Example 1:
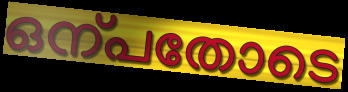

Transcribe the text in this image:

ഒന്പതോടെ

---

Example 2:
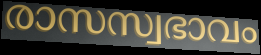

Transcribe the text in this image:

രാസസ്വഭാവം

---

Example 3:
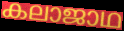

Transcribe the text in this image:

കലാജാഥ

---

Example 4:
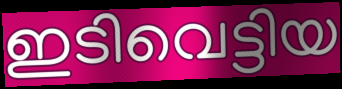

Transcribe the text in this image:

ഇടിവെട്ടിയ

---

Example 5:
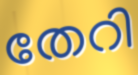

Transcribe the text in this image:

തേറി